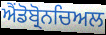
ਐਂਡੋਬ੍ਰੋਨਚਿਅਲ